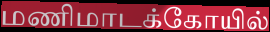
மணிமாடக்கோயில்